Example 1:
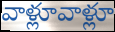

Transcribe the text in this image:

వాళ్లూవాళ్లూ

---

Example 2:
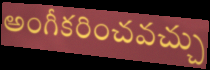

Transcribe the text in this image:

అంగీకరించవచ్చు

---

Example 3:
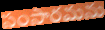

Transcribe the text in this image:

సంసారమను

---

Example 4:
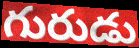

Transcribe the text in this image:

గురుడు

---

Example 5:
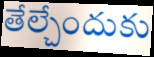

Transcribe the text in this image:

తేల్చేందుకు